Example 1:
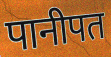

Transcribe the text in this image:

पानीपत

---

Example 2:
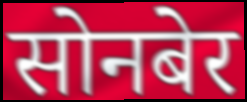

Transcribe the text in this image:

सोनबेर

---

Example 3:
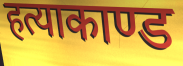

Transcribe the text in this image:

हत्याकाण्ड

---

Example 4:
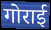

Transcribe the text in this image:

गोराई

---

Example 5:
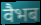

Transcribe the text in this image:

वैभब